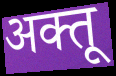
अक्तू